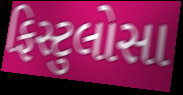
ફિસ્ટુલોસા